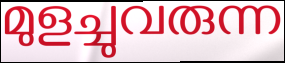
മുളച്ചുവരുന്ന